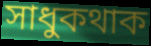
সাধুকথাক